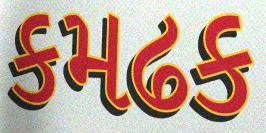
કમઢક